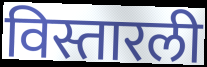
विस्तारली